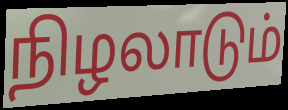
நிழலாடும்